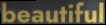
beautiful